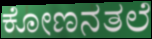
ಕೋಣನತಲೆ